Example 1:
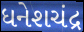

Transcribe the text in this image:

ધનેશચંદ્ર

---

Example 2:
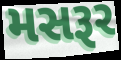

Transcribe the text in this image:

મસરૂર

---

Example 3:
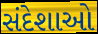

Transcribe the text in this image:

સંદેશાઓ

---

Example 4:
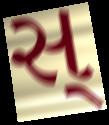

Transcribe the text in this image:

સ્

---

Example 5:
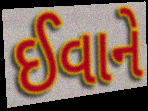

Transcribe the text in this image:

ઈવાને